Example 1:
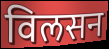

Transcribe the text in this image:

विलसन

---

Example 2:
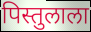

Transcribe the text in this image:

पिस्तुलाला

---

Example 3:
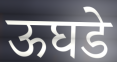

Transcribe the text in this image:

ऊघडे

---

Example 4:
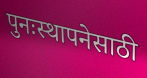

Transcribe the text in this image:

पुनःस्थापनेसाठी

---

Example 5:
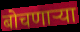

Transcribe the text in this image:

बोचणाऱ्या